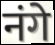
नंगे